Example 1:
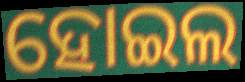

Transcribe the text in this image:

ହୋଇଲ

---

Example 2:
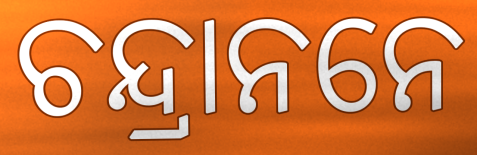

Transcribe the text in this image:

ଚନ୍ଦ୍ରାନନେ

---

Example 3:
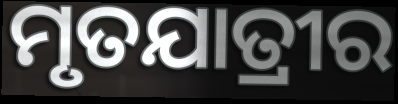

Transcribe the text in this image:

ମୃତଯାତ୍ରୀର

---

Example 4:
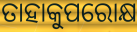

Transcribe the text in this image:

ତାହାକୁପରୋକ୍ଷ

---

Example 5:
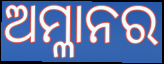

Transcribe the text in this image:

ଅମ୍ଳାନର